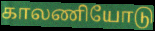
காலணியோடு